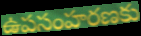
ఉపసంహరణకు